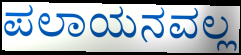
ಪಲಾಯನವಲ್ಲ